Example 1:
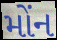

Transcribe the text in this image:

મોંન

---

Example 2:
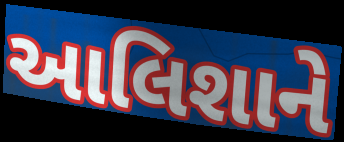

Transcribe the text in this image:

આલિશાને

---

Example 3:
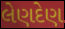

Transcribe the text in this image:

લેણદેણ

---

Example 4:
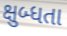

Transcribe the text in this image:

ક્ષુબ્ધતા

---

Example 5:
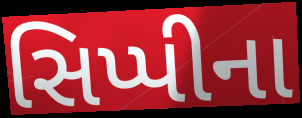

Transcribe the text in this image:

સિપ્પીના